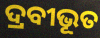
ଦ୍ରବୀଭୂତ